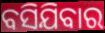
ବସିଯିବାର